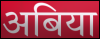
अबिया